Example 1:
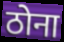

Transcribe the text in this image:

ठोना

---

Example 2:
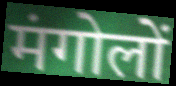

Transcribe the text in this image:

मंगोलों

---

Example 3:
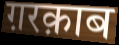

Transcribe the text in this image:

ग़रक़ाब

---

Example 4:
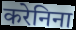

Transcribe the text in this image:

करेनिना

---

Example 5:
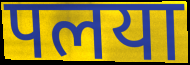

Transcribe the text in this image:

पलया